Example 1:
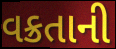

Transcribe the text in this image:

વક્રતાની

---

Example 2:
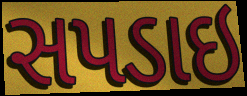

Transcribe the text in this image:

સપડાઇ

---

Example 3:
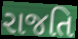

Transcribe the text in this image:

રાજતિ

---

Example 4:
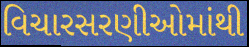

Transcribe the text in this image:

વિચારસરણીઓમાંથી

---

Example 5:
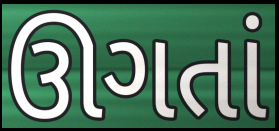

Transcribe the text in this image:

ઊગતાં